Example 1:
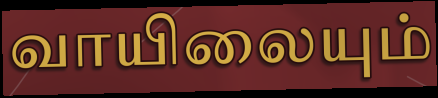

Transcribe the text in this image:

வாயிலையும்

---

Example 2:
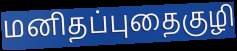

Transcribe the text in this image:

மனிதப்புதைகுழி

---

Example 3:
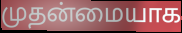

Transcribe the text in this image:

முதன்மையாக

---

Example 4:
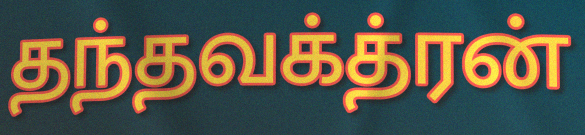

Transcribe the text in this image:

தந்தவக்த்ரன்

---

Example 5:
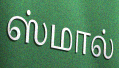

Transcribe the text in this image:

ஸ்மால்